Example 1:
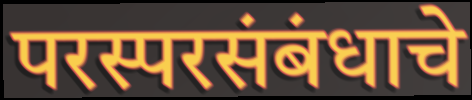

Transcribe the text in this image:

परस्परसंबंधाचे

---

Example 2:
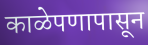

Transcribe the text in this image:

काळेपणापासून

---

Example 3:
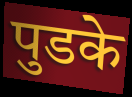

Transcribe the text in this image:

पुडके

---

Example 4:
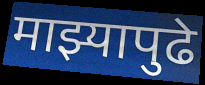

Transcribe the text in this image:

माझ्यापुढे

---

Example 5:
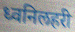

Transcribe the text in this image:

ध्वनिलहरी